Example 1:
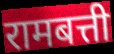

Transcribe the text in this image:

रामबत्ती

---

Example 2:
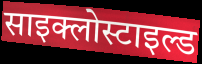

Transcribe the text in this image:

साइक्लोस्टाइल्ड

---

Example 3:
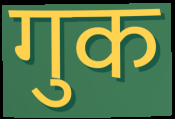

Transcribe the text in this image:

गुक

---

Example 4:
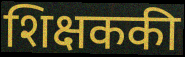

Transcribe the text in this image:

शिक्षककी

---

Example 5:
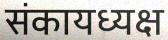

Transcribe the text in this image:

संकायध्यक्ष